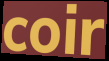
coir